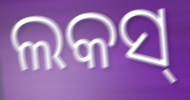
ଲକସ୍